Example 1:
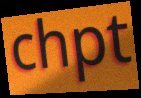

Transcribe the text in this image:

chpt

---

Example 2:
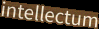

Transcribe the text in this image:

intellectum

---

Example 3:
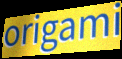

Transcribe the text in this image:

origami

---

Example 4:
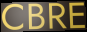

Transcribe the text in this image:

CBRE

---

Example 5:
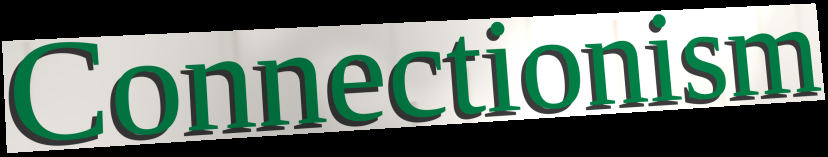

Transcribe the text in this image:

Connectionism